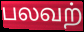
பலவற்